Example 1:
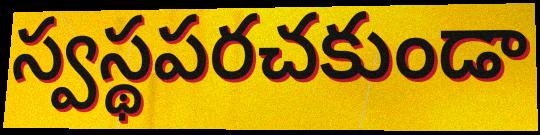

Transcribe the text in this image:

స్వస్థపరచకుండా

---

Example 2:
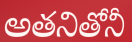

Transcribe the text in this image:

అతనితోనీ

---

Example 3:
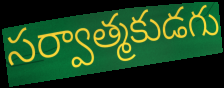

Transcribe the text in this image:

సర్వాత్మకుడగు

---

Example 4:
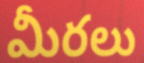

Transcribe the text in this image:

మీరలు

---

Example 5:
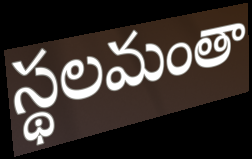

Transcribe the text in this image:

స్థలమంతా